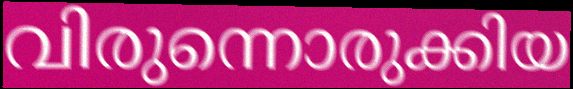
വിരുന്നൊരുക്കിയ